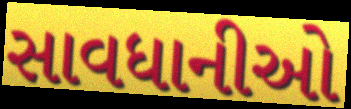
સાવધાનીઓ